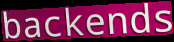
backends